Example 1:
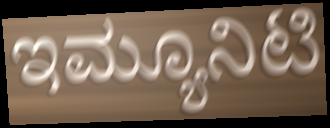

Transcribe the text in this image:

ಇಮ್ಯೂನಿಟಿ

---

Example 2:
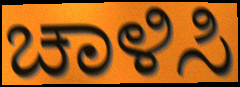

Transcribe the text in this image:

ಚಾಳಿಸಿ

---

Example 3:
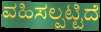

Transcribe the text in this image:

ವಹಿಸಲ್ಪಟ್ಟಿದೆ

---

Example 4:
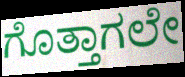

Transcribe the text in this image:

ಗೊತ್ತಾಗಲೇ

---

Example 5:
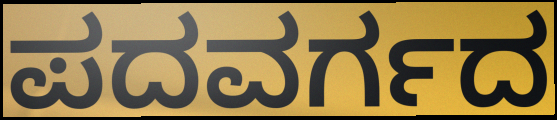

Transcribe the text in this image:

ಪದವರ್ಗದ